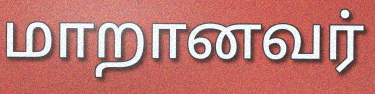
மாறானவர்